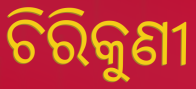
ଚିରିକୁଣୀ